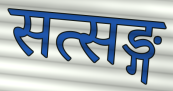
सत्सङ्ग